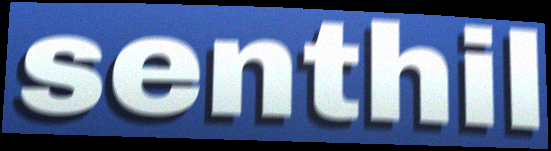
senthil